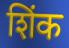
शिंक